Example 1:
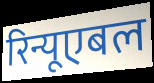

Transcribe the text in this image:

रिन्यूएबल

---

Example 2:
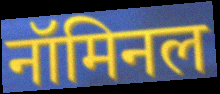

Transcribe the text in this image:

नॉमिनल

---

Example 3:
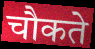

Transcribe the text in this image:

चौकते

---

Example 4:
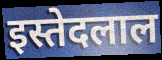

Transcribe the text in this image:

इस्तेदलाल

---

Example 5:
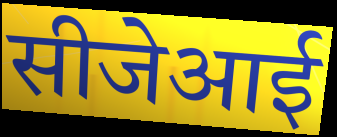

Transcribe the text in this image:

सीजेआई